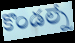
కొండల్నే